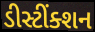
ડીસ્ટીંક્શન